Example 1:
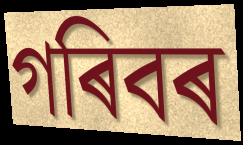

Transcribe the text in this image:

গৰিবৰ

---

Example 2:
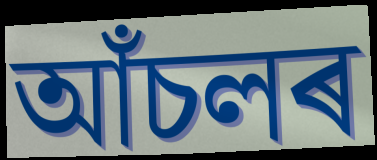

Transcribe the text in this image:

আঁচলৰ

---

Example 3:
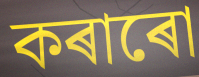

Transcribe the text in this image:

কৰাৰো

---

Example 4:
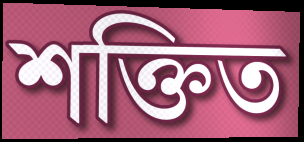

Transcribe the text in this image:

শক্তিত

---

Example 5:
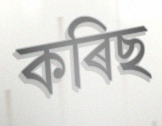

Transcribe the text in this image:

কৰিছ